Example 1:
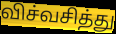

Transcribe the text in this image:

விச்வசித்து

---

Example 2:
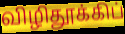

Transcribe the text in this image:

விழிதூக்கிப்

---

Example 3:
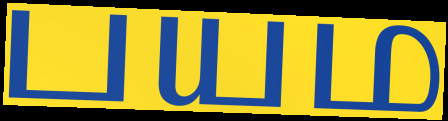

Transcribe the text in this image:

பயம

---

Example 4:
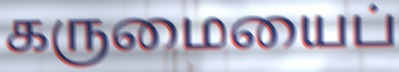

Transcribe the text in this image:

கருமையைப்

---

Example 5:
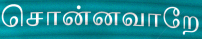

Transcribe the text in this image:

சொன்னவாறே